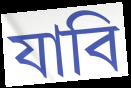
যাবি